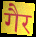
गैर